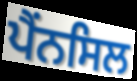
ਪੈਂਨਸਿਲ